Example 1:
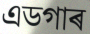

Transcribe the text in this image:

এডগাৰ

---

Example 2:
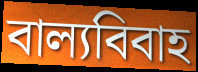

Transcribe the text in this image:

বাল্যবিবাহ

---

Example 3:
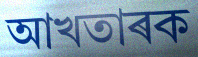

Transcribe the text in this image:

আখতাৰক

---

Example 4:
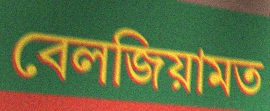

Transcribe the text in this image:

বেলজিয়ামত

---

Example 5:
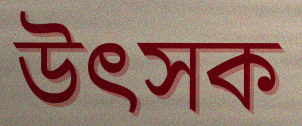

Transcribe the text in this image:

উৎসক